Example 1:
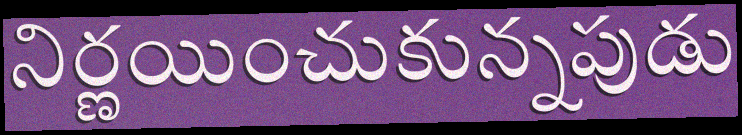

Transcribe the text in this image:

నిర్ణయించుకున్నపుడు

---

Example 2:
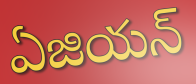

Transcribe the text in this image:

ఏజియన్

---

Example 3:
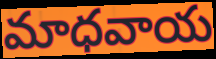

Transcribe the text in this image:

మాధవాయ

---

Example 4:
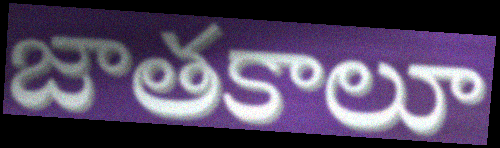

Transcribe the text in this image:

జాతకాలూ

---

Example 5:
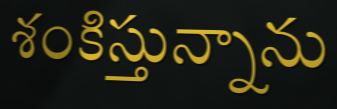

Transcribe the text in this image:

శంకిస్తున్నాను